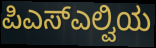
ಪಿಎಸ್ಎಲ್ವಿಯ